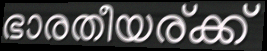
ഭാരതീയര്ക്ക്